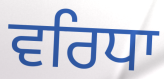
ਵਰਿਧਾ